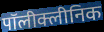
पॉलीक्लीनिक